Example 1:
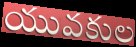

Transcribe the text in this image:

యువకుల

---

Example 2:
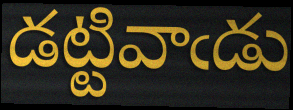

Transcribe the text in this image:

డట్టివాఁడు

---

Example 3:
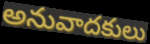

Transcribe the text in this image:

అనువాదకులు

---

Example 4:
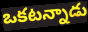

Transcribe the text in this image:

ఒకటన్నాడు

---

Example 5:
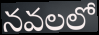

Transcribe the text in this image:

నవలలో